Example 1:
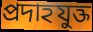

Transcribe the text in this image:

প্রদাহযুক্ত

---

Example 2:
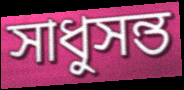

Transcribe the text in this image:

সাধুসন্ত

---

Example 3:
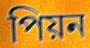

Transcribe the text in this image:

পিয়ন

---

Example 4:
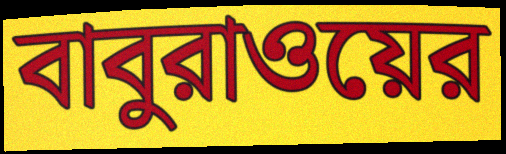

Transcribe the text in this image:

বাবুরাওয়ের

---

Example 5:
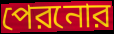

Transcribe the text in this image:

পেরনোর